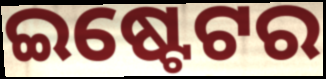
ଇଷ୍ଟେଟର